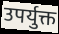
उपर्युक्त